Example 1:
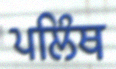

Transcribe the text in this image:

ਪਲਿੰਥ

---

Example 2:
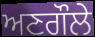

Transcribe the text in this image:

ਅਣਗੌਲੇ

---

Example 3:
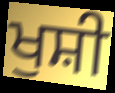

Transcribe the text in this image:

ਖੁਸ਼ੀ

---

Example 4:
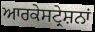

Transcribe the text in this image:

ਆਰਕੇਸਟ੍ਰੇਸ਼ਨਾਂ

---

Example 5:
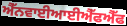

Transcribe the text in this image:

ਐੱਨਵਾਈਆਈਐੱਫਐੱਫ